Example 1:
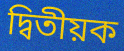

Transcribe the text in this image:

দ্বিতীয়ক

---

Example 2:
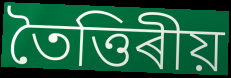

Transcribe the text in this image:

তৈত্তিৰীয়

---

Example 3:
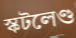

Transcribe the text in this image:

স্কটলেণ্ড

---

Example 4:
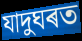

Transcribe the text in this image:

যাদুঘৰত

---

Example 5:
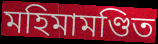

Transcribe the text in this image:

মহিমামণ্ডিত